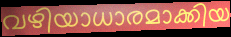
വഴിയാധാരമാക്കിയ